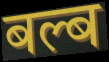
बल्‍ब